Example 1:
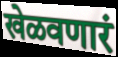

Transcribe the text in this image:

खेळवणारं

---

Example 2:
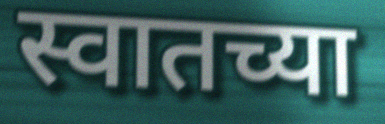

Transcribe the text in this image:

स्वातच्या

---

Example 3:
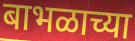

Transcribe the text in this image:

बाभळाच्या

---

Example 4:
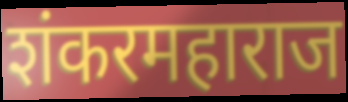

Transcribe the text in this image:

शंकरमहाराज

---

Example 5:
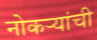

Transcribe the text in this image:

नोकऱ्यांची